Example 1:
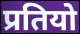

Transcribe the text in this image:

प्रतियो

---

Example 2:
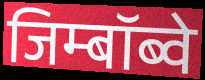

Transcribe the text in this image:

जिम्बॉब्वे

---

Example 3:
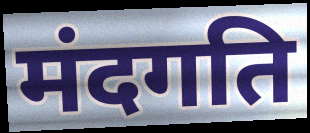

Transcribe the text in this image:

मंदगति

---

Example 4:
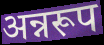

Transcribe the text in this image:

अन्नरूप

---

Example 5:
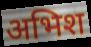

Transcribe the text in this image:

अभिश